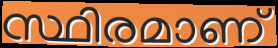
സ്ഥിരമാണ്